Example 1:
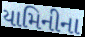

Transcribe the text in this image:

યામિનીના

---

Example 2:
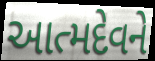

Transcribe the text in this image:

આત્મદેવને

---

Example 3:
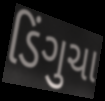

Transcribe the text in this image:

ડિંગુચા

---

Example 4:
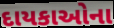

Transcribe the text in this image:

દાયકાઓના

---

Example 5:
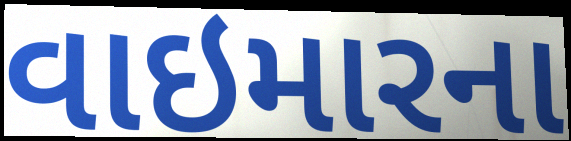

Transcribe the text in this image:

વાઇમારના